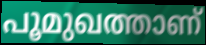
പൂമുഖത്താണ്